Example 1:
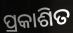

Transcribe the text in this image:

ପ୍ରକାଶିତ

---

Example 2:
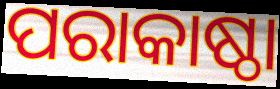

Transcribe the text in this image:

ପରାକାଷ୍ଠା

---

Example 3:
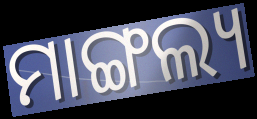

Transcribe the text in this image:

ମାଙ୍ଗଲ୍ୟ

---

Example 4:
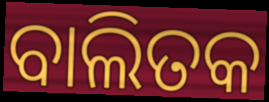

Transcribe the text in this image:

ବାଲିତକ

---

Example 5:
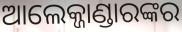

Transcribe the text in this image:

ଆଲେକ୍ଜାଣ୍ଡାରଙ୍କର